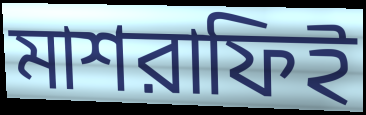
মাশরাফিই